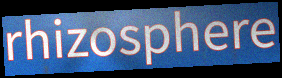
rhizosphere